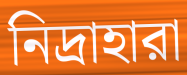
নিদ্রাহারা